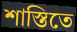
শাস্তিতে